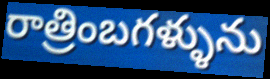
రాత్రింబగళ్ళును